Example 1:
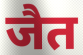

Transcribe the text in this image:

जैत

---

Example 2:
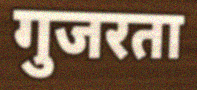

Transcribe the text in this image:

गुजरता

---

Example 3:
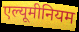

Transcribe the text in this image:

एल्यूमीनियम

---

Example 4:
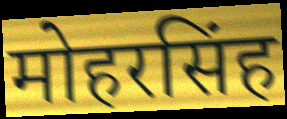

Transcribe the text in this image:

मोहरसिंह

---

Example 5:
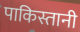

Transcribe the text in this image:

पाकिस्तानी